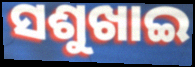
ସଶୁଖାଇ